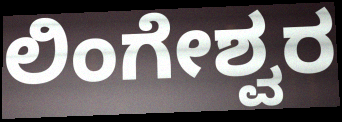
ಲಿಂಗೇಶ್ವರ